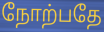
நோற்பதே